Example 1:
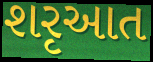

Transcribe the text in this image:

શરૃઆત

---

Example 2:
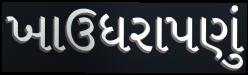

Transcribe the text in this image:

ખાઉધરાપણું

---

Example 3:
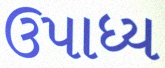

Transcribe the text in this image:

ઉપાધ્ય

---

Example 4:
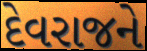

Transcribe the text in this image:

દેવરાજને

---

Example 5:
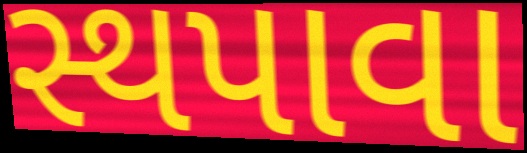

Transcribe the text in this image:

સ્થપાવા